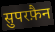
सुपरफ़ैन